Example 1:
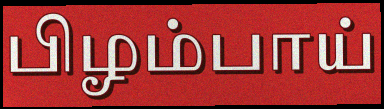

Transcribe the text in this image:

பிழம்பாய்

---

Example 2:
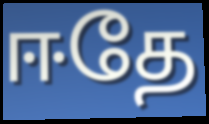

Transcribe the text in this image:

ஈதே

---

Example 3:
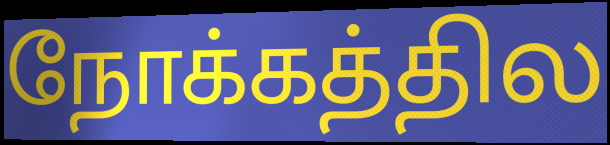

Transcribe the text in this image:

நோக்கத்தில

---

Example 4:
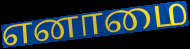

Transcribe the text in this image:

எனாமை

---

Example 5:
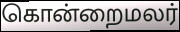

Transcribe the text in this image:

கொன்றைமலர்